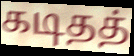
கடிதத்